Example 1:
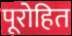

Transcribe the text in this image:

पूरोहित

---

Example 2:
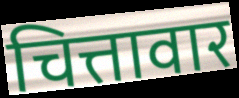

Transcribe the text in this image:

चित्तावार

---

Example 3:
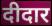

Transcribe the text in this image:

दीदार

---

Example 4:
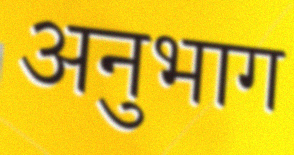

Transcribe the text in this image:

अनुभाग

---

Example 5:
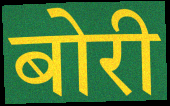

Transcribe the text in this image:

बोरी